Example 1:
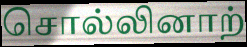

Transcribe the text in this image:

சொல்லினாற்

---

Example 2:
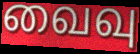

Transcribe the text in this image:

வைவு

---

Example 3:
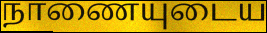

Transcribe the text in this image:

நாணையுடைய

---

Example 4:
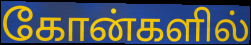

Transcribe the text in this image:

கோன்களில்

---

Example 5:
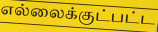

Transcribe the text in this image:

எல்லைக்குட்பட்ட